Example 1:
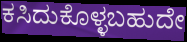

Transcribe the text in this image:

ಕಸಿದುಕೊಳ್ಳಬಹುದೇ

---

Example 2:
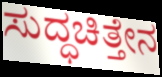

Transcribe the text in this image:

ಸುದ್ಧಚಿತ್ತೇನ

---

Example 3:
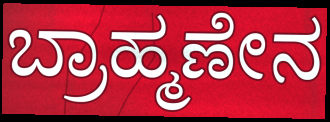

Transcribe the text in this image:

ಬ್ರಾಹ್ಮಣೇನ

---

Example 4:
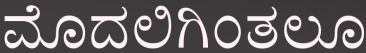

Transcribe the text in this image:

ಮೊದಲಿಗಿಂತಲೂ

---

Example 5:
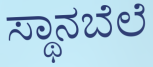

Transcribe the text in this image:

ಸ್ಥಾನಬೆಲೆ